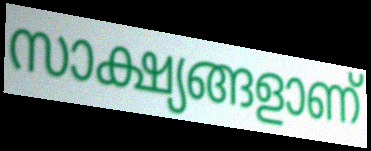
സാക്ഷ്യങ്ങളാണ്